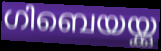
ഗിബെയയ്ക്കു